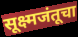
सूक्ष्मजंतूचा